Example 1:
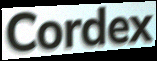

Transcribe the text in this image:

Cordex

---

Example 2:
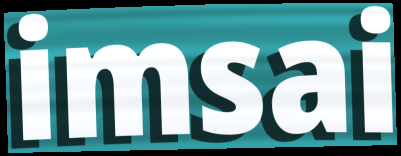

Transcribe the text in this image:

imsai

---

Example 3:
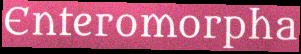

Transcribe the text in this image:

Enteromorpha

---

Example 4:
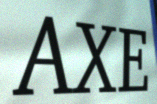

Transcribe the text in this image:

AXE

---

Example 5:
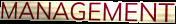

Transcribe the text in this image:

MANAGEMENT